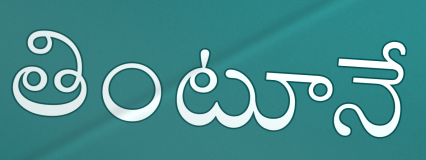
తింటూనే